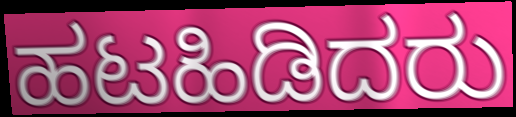
ಹಟಹಿಡಿದರು